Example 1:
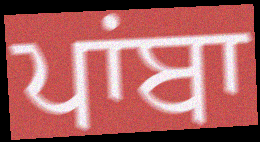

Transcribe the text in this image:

ਪਾਂਬਾ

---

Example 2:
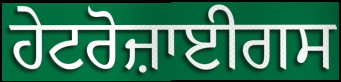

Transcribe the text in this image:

ਹੇਟਰੋਜ਼ਾਈਗਸ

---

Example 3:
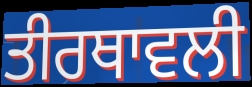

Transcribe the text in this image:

ਤੀਰਥਾਵਲੀ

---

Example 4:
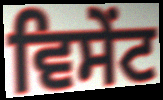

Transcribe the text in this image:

ਵਿਸੇਂਟ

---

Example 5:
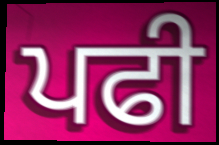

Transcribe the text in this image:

ਪਫੀ